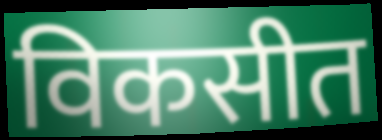
विकसीत